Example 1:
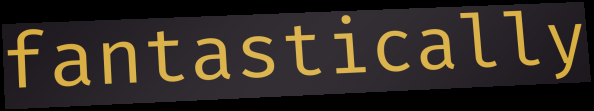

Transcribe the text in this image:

fantastically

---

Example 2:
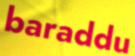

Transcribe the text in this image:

baraddu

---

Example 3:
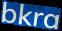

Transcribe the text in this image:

bkra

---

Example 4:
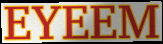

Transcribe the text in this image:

EYEEM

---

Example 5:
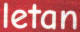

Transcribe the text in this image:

letan